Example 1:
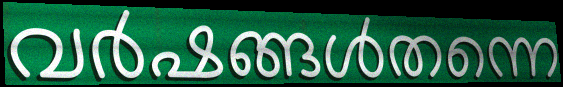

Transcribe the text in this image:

വർഷങ്ങൾതന്നെ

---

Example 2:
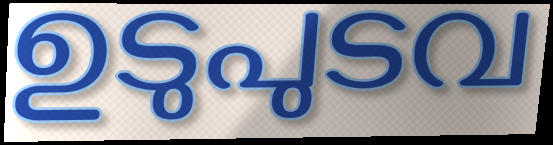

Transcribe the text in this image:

ഉടുപുടവ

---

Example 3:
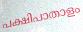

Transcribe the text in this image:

പക്ഷിപാതാളം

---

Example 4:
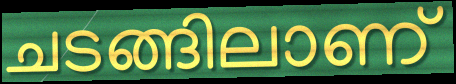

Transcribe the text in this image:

ചടങ്ങിലാണ്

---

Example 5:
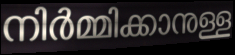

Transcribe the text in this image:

നിർമ്മിക്കാനുള്ള